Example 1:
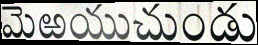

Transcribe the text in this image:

మెఱయుచుండు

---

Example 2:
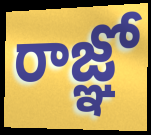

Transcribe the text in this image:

రాజ్ఞో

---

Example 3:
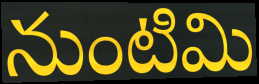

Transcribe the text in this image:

నుంటిమి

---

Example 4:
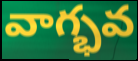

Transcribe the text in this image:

వాగ్భవ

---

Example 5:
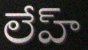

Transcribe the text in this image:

లేహ్